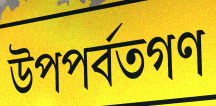
উপপর্বতগণ